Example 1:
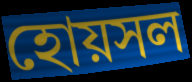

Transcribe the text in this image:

হোয়সল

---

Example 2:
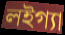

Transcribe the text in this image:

লইগ্যা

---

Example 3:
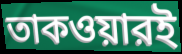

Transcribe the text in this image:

তাকওয়ারই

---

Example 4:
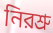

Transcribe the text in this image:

নিরশ্রু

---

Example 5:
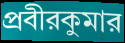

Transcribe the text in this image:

প্রবীরকুমার